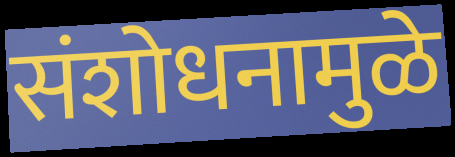
संशोधनामुळे